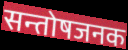
सन्तोषजनक